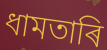
ধামতাৰি